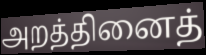
அறத்தினைத்